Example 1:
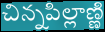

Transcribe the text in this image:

చిన్నపిల్లాణ్ణి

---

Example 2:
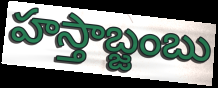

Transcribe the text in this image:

హస్తాబ్జంబు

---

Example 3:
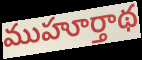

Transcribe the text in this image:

ముహూర్తాథ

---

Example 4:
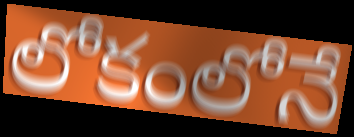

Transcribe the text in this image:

లోకంలోనే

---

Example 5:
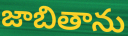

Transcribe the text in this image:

జాబితాను